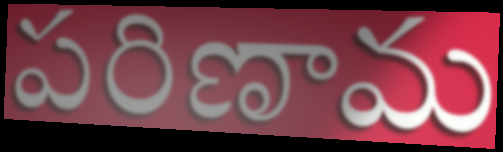
పరిణామ